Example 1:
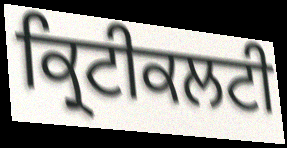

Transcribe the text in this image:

ਕ੍ਰਿਟੀਕਲਟੀ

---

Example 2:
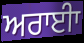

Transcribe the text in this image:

ਅਰਾਈਾ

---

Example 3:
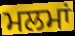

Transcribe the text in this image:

ਮਲਮਾਂ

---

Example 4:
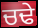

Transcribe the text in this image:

ਚਢੇ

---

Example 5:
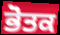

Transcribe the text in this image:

ਭੋਤਕ